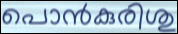
പൊൻകുരിശു